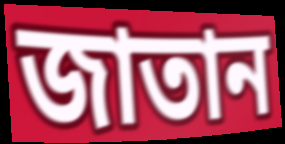
জাতান